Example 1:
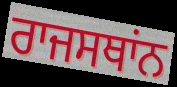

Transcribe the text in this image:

ਰਾਜਸਥਾਂਨ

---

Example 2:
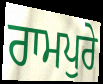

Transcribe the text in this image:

ਰਾਮਪੁਰੇ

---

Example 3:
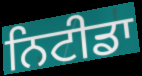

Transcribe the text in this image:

ਨਿਟੀਡਾ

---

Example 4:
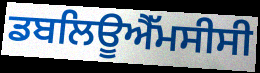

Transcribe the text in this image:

ਡਬਲਿਊਐੱਮਸੀਸੀ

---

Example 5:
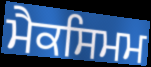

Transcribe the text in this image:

ਮੈਕਸਿਮਮ